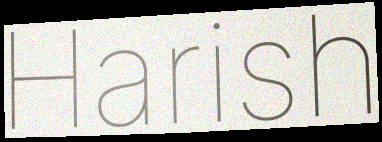
Harish